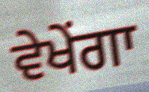
ਵੇਖੇਂਗਾ